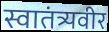
स्वातंत्र्यवीर